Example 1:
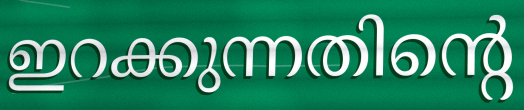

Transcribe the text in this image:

ഇറക്കുന്നതിന്റെ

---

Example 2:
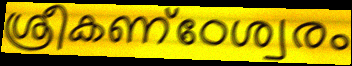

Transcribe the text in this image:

ശ്രീകണ്‌ഠേശ്വരം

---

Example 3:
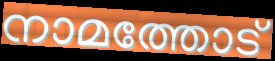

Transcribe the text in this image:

നാമത്തോട്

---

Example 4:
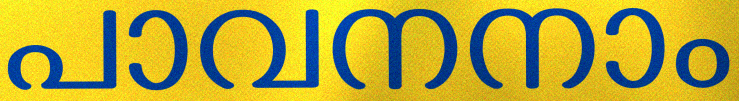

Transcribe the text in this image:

പാവനനാം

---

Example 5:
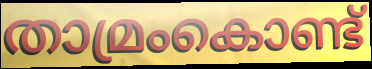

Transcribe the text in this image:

താമ്രംകൊണ്ട്